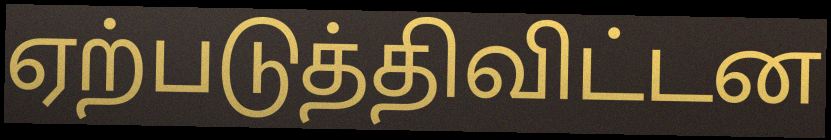
ஏற்படுத்திவிட்டன